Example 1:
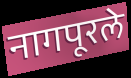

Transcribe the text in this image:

नागपूरले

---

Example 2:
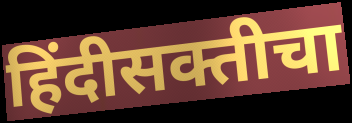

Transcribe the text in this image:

हिंदीसक्तीचा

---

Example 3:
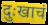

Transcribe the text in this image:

दुःखाचं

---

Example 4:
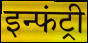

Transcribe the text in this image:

इन्फंट्री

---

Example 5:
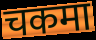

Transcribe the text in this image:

चकमा